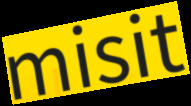
misit